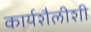
कार्यशैलीशी